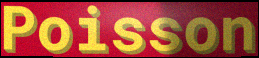
Poisson